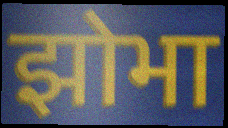
झोभा